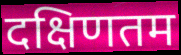
दक्षिणतम